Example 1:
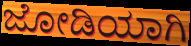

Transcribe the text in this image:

ಜೋಡಿಯಾಗಿ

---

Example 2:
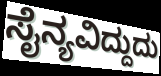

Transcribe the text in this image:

ಸೈನ್ಯವಿದ್ದುದು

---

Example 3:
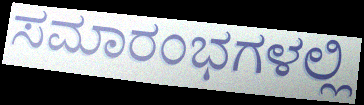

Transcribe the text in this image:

ಸಮಾರಂಭಗಳಲ್ಲಿ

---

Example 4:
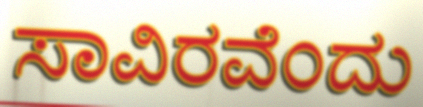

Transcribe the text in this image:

ಸಾವಿರವೆಂದು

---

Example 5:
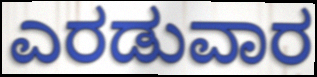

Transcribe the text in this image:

ಎರಡುವಾರ